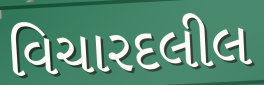
વિચારદલીલ